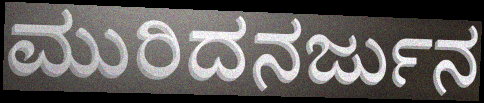
ಮುರಿದನರ್ಜುನ